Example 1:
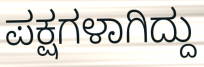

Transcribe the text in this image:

ಪಕ್ಷಗಳಾಗಿದ್ದು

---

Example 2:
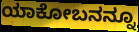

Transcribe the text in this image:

ಯಾಕೋಬನನ್ನೂ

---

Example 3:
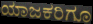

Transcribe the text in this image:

ಯಾಜಕರಿಗೂ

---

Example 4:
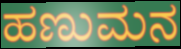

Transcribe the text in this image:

ಹಣುಮನ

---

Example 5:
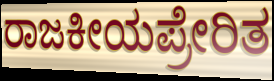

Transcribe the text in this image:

ರಾಜಕೀಯಪ್ರೇರಿತ